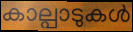
കാല്പാടുകൾ